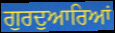
ਗੁਰਦੁਆਰਿਆਂ